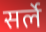
सर्ले